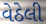
વેઠેલી